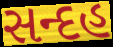
સન્દહ